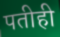
पतीही